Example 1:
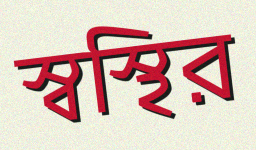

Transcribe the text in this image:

স্বস্থির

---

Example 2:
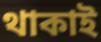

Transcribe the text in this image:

থাকাই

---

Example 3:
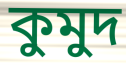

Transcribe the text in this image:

কুমুদ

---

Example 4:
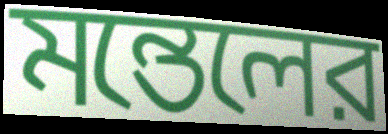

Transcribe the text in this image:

মন্তেলের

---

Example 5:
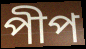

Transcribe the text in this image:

পীপ